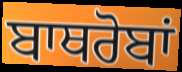
ਬਾਥਰੋਬਾਂ